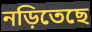
নড়িতেছে